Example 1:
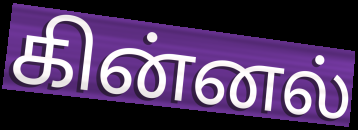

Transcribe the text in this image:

கின்னல்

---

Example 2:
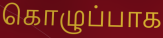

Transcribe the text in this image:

கொழுப்பாக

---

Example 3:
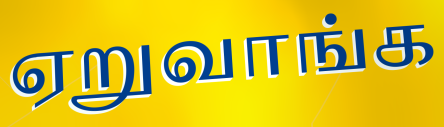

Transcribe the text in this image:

ஏறுவாங்க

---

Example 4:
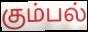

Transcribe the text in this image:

கும்பல்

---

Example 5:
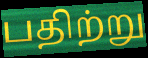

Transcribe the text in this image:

பதிற்று